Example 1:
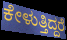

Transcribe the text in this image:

ಕೇಳುತ್ತಿದ್ದರೆ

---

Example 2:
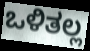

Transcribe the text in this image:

ಒಳಿತಲ್ಲ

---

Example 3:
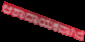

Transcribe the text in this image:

ಆಶಾದಾಯಕವಾಗಿದೆ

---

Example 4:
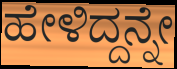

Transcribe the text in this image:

ಹೇಳಿದ್ದನ್ನೇ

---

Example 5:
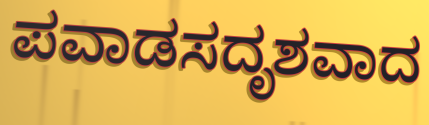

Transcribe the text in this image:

ಪವಾಡಸದೃಶವಾದ